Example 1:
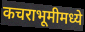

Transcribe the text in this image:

कचराभूमीमध्ये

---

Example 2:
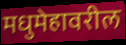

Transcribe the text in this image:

मधुमेहावरील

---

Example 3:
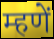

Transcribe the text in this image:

म्हणें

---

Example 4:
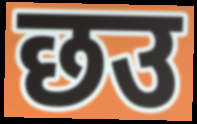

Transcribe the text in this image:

छउ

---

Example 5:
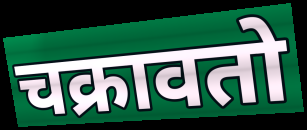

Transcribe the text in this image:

चक्रावतो